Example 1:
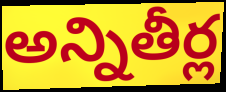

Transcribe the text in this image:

అన్నితీర్ల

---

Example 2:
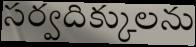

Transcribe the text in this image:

సర్వదిక్కులను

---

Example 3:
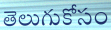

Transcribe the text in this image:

తెలుగుకోసం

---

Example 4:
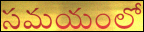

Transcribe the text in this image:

సమయంలో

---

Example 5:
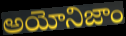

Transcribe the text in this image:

అయోనిజాం